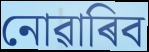
নোৱাৰিব